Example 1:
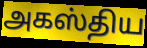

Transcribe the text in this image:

அகஸ்திய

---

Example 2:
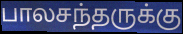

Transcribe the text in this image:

பாலசந்தருக்கு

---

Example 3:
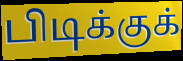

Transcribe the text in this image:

பிடிக்குக்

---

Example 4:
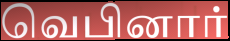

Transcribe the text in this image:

வெபினார்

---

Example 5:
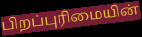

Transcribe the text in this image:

பிறப்புரிமையின்